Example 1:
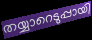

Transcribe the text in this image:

തയ്യാറെടുപ്പായി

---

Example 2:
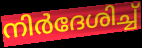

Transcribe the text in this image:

നിർദേശിച്ച്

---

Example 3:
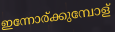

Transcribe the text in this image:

ഇന്നോര്ക്കുമ്പോള്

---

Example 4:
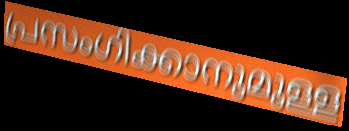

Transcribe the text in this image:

പ്രസംഗിക്കാനുമുള്ള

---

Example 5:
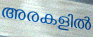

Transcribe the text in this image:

അരകളിൽ